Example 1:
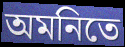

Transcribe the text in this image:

অমনিতে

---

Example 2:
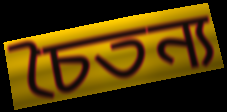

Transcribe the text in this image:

চৈতন্য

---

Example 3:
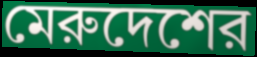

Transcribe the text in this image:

মেরুদেশের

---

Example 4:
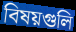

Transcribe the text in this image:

বিষয়গুলি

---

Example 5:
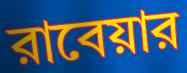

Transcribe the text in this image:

রাবেয়ার